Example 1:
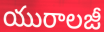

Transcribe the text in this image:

యురాలజీ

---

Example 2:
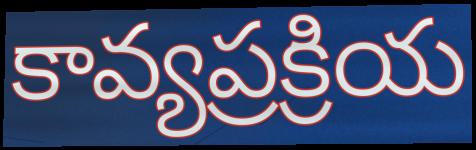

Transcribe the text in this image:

కావ్యప్రక్రియ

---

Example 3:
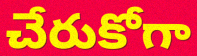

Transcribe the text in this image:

చేరుకోగా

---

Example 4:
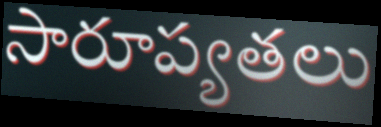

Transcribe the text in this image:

సారూప్యతలు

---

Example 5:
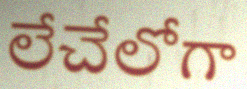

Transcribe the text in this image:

లేచేలోగా